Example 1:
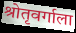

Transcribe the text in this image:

श्रोतृवर्गाला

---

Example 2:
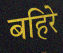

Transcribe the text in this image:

बहिरे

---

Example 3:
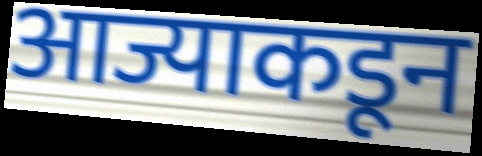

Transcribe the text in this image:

आज्याकडून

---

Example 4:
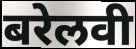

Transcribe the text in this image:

बरेलवी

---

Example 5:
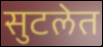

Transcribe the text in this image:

सुटलेत